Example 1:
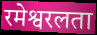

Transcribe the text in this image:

रमेश्वरलता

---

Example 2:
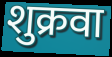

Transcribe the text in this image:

शुक्रवा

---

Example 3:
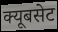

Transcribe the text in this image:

क्यूबसेट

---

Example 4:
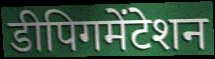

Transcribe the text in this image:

डीपिगमेंटेशन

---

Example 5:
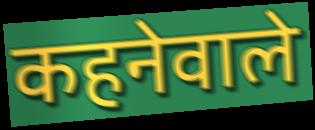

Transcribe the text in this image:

कहनेवाले